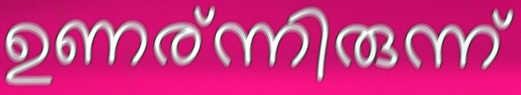
ഉണര്ന്നിരുന്ന്